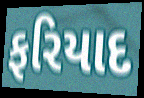
ફરિયાદ